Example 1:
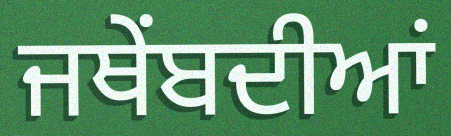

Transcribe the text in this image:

ਜਥੇਂਬਦੀਆਂ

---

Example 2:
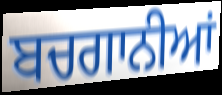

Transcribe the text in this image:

ਬਚਗਾਨੀਆਂ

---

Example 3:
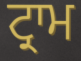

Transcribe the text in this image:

ਟ੍ਰਾਮ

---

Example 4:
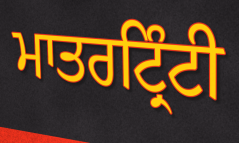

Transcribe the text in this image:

ਮਾਤਰਟ੍ਰਿੰਟੀ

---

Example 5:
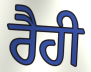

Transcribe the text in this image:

ਰੈਹੀ